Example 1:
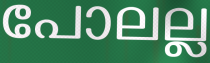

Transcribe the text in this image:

പോലല്ല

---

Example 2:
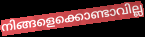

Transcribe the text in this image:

നിങ്ങളെക്കൊണ്ടാവില്ല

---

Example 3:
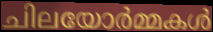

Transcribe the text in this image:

ചിലയോർമ്മകൾ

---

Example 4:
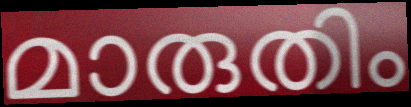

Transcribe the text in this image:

മാരുതിം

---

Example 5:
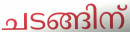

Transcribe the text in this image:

ചടങ്ങിന്